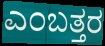
ಎಂಬತ್ತರ